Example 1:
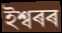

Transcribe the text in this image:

ইশ্বৰৰ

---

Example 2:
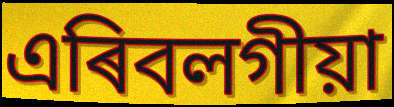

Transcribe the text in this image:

এৰিবলগীয়া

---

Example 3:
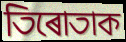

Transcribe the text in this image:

তিৰোতাক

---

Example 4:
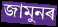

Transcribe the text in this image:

জামুনৰ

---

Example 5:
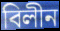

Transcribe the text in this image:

বিলীন